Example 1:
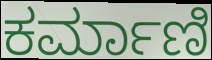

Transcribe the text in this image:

ಕರ್ಮಾಣಿ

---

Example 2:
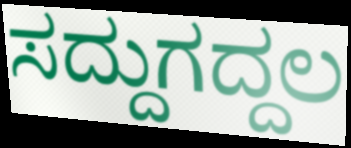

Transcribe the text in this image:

ಸದ್ದುಗದ್ದಲ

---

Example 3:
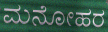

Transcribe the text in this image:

ಮನೋಹರ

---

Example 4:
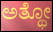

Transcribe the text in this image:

ಅತ್ಥೋ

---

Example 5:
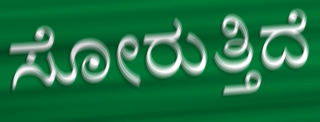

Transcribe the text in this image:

ಸೋರುತ್ತಿದೆ